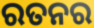
ରତନର